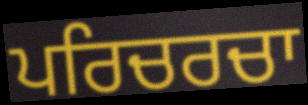
ਪਰਿਚਰਚਾ